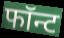
फॉन्ट